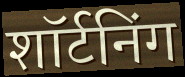
शॉर्टनिंग